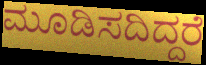
ಮೂಡಿಸದಿದ್ದರೆ